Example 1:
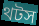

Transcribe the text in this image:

থটস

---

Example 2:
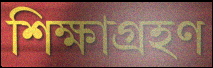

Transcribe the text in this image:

শিক্ষাগ্রহণ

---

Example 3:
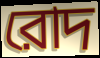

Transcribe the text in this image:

রোদ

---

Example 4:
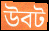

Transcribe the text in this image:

উবট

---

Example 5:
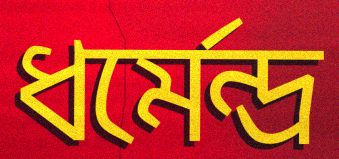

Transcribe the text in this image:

ধর্মেন্দ্র